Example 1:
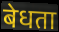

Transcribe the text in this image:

बेधता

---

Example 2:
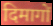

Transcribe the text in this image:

दिमागों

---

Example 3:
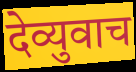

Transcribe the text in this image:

देव्युवाच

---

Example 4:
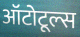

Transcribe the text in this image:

ऑटोटूल्स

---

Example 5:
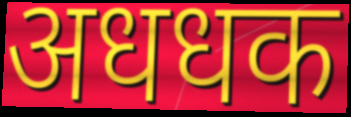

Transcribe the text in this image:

अधधक